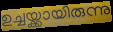
ഉച്ചയ്ക്കായിരുന്നു